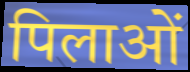
पिलाओं